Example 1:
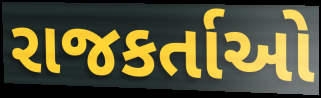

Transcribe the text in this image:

રાજકર્તાઓ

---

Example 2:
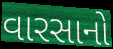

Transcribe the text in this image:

વારસાનો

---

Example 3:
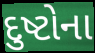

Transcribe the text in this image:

દુષ્ટોના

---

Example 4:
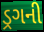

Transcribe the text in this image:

ડ્રગની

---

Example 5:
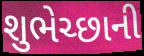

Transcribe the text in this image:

શુભેચ્છાની